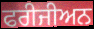
ਫਰੀਜੀਅਨ